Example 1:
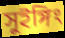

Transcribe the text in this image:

সুইঙ্গিং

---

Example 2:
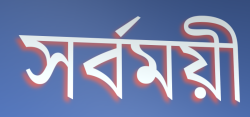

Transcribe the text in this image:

সর্বময়ী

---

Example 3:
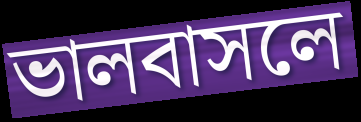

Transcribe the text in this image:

ভালবাসলে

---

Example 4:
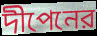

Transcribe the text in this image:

দীপেনের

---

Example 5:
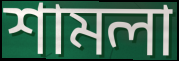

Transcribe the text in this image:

শামলা